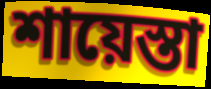
শায়েস্তা